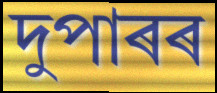
দুপাৰৰ